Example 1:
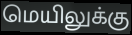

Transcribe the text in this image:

மெயிலுக்கு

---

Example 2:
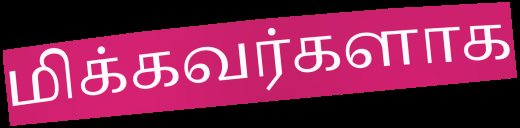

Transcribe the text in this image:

மிக்கவர்களாக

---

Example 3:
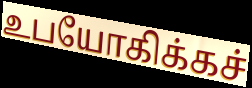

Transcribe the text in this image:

உபயோகிக்கச்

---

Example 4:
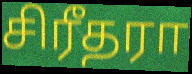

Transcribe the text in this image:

சிரீதரா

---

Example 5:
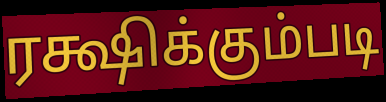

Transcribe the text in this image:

ரக்ஷிக்கும்படி